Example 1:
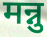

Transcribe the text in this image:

मन्नु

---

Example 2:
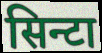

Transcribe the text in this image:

सिन्टा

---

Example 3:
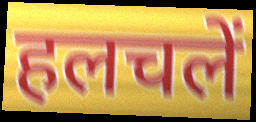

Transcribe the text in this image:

हलचलें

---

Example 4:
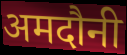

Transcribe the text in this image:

अमदौनी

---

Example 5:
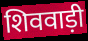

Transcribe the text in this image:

शिववाड़ी